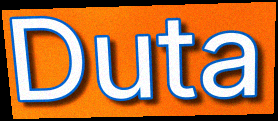
Duta